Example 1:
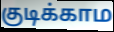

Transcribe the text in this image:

குடிக்காம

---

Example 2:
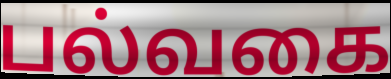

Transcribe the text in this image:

பல்வகை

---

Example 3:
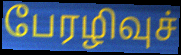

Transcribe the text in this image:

பேரழிவுச்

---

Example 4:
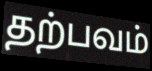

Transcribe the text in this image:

தற்பவம்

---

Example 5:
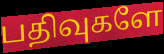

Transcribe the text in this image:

பதிவுகளே